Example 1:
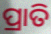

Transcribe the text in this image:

ପ୍ରାତି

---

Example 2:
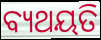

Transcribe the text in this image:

ବ୍ୟଥୟତି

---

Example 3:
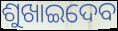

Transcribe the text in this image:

ଶୁଖାଇଦେବ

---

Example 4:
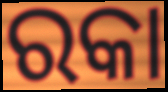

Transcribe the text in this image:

ରକା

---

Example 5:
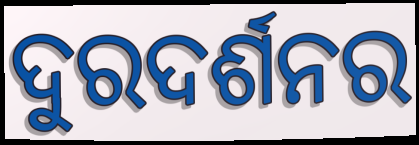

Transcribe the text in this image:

ଦୁରଦର୍ଶନର